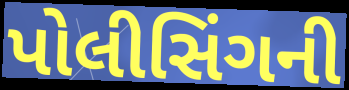
પોલીસિંગની